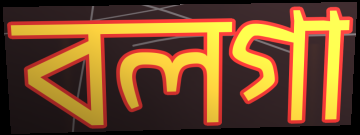
বলগা